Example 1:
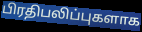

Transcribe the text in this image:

பிரதிபலிப்புகளாக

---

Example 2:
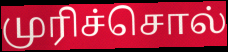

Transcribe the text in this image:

முரிச்சொல்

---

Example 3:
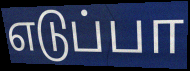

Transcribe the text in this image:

எடுப்பா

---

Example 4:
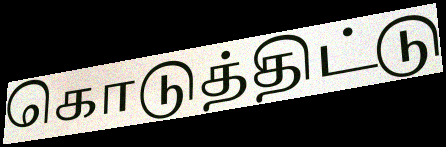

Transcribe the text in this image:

கொடுத்திட்டு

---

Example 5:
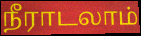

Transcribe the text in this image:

நீராடலாம்